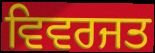
ਵਿਵਰਜਤ